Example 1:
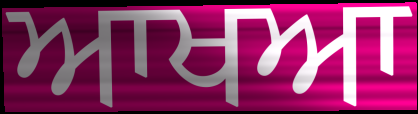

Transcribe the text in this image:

ਆਖਆ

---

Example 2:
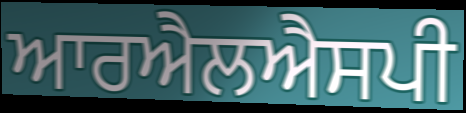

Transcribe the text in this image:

ਆਰਐਲਐਸਪੀ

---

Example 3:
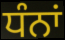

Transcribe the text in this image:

ਧੰਨਾਂ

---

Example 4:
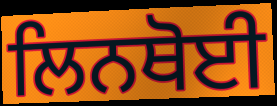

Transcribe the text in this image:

ਲਿਨਥੋਈ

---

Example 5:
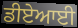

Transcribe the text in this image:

ਡੀਏਆਈ